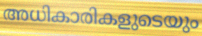
അധികാരികളുടെയും